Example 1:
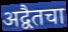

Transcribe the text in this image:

अद्वैतचा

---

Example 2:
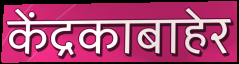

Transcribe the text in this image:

केंद्रकाबाहेर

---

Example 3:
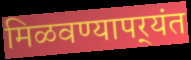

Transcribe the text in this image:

मिळवण्यापर्यंत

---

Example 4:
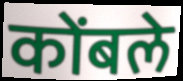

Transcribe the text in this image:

कोंबले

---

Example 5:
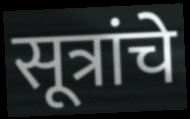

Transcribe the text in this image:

सूत्रांचे